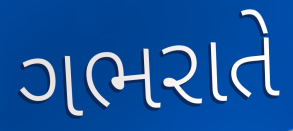
ગભરાતે